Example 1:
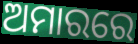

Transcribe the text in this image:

ଅମାରରେ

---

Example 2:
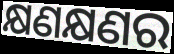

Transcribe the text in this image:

କ୍ଷଣକ୍ଷଣର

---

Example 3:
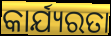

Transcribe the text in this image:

କାର୍ଯ୍ୟରତା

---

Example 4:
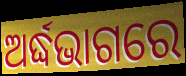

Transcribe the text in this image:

ଅର୍ଦ୍ଧଭାଗରେ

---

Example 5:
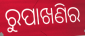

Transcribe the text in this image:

ରୁପାଖଣିର